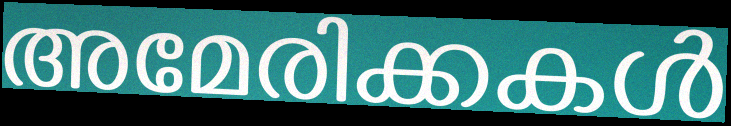
അമേരിക്കകൾ